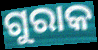
ଗୁରାକ